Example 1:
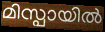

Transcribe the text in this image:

മിസ്പായിൽ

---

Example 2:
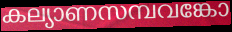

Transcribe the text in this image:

കല്യാണസമ്പവങ്കോ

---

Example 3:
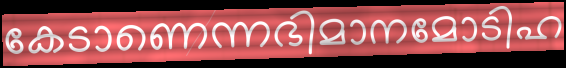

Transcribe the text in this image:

കേടാണെന്നഭിമാനമോടിഹ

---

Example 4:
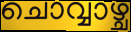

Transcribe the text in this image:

ചൊവ്വാഴ്ച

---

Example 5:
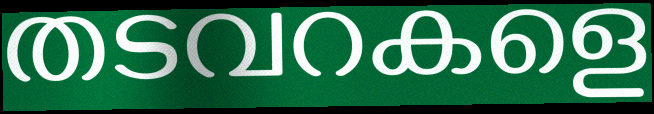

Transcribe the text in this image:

തടവറകളെ